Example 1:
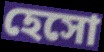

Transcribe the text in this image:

হেসো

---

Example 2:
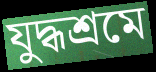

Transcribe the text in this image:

যুদ্ধশ্রমে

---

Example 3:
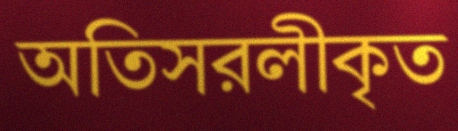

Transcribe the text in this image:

অতিসরলীকৃত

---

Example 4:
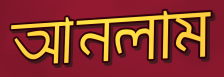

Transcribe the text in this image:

আনলাম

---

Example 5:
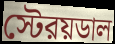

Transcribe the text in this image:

স্টেরয়ডাল